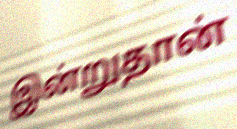
இன்றுதான்